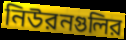
নিউরনগুলির